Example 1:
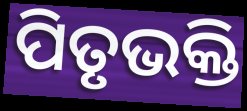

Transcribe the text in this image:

ପିତୃଭକ୍ତି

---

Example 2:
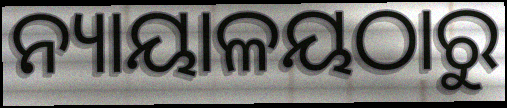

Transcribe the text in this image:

ନ୍ୟାୟାଳୟଠାରୁ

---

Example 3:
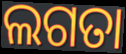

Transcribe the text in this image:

ଲଗତା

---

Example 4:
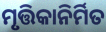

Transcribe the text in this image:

ମୃତ୍ତିକାନିର୍ମିତ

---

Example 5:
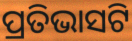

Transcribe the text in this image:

ପ୍ରତିଭାସଟି